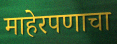
माहेरपणाचा